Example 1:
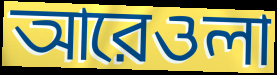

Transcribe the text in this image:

আরেওলা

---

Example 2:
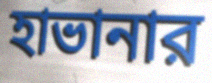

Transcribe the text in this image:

হাভানার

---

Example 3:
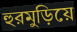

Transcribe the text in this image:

হুরমুড়িয়ে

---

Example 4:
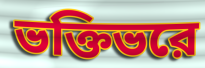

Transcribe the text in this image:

ভক্তিভরে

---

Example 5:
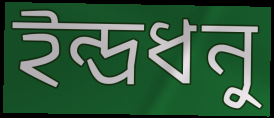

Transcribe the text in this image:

ইন্দ্রধনু